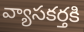
వ్యాసకర్తకి